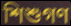
শিশুগণ